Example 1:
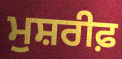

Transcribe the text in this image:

ਮੁਸ਼ਰੀਫ਼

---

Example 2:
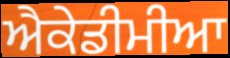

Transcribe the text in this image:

ਐਕੇਡੀਮੀਆ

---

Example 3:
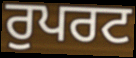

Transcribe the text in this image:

ਰੁਪਰਟ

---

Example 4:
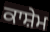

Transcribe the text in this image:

ਕਾਸ਼ੇਮ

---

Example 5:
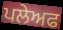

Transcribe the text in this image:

ਪਲੇਅਫ